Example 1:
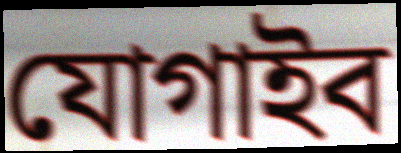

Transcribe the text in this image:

যোগাইব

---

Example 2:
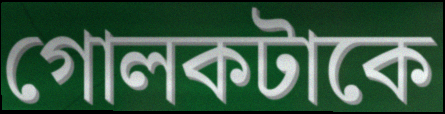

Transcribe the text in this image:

গোলকটাকে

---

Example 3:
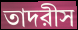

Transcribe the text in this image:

তাদরীস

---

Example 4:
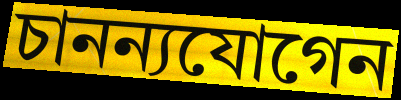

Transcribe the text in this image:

চানন্যযোগেন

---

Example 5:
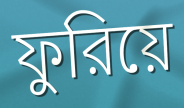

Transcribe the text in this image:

ফুরিয়ে